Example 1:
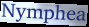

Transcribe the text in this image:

Nymphea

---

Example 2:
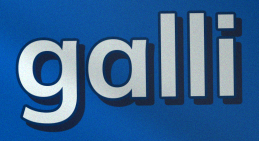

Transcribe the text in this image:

galli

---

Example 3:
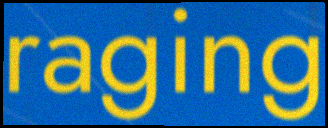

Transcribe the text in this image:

raging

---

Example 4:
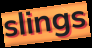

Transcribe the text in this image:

slings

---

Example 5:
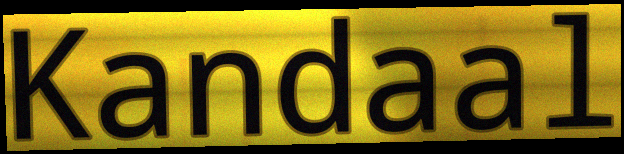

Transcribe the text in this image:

Kandaal